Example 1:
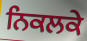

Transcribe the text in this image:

ਨਿਕਲਕੇ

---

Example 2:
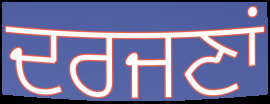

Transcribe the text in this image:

ਦਰਜਣਾਂ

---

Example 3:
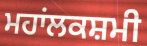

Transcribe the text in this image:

ਮਹਾਂਲਕਸ਼ਮੀ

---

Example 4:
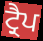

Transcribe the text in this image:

ਟ੍ਰੈਪ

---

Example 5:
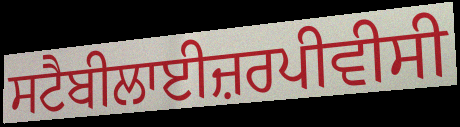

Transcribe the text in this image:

ਸਟੈਬੀਲਾਈਜ਼ਰਪੀਵੀਸੀ